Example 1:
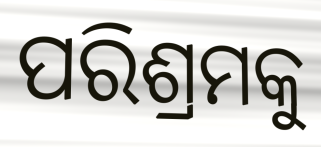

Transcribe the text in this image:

ପରିଶ୍ରମକୁ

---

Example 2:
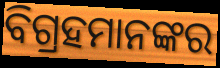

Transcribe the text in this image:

ବିଗ୍ରହମାନଙ୍କର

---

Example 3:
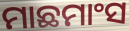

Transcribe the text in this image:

ମାଛମାଂସ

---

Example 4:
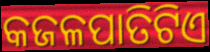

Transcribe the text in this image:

କଜଳପାତିଟିଏ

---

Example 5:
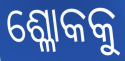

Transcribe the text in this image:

ଶ୍ଳୋକକୁ